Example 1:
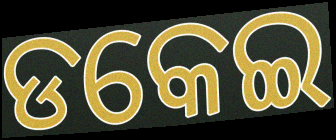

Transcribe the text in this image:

ଡକେଇ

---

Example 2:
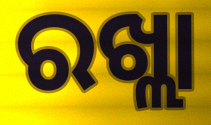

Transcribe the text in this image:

ରଖ୍ଲା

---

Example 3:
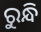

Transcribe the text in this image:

ରୁନ୍ଧି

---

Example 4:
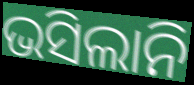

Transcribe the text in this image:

ଭସିଲାନି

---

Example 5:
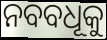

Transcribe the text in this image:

ନବବଧୂକୁ